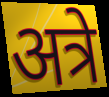
अत्रे